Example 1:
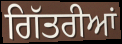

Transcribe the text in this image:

ਗਿੱਤਰੀਆਂ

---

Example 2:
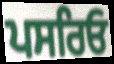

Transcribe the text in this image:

ਪਸਰਿਓ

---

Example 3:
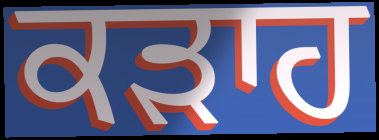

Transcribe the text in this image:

ਕੜਾਹ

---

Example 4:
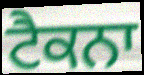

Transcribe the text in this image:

ਟੈਕਨਾ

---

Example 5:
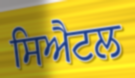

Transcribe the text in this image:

ਸਿਐਟਲ